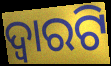
ଦ୍ୱାରଟି